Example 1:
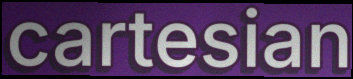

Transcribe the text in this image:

cartesian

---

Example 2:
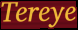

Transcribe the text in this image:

Tereye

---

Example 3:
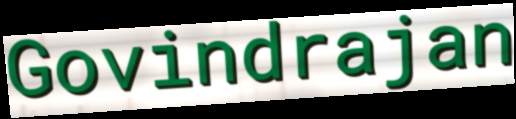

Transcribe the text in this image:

Govindrajan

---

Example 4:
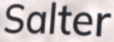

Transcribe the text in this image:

Salter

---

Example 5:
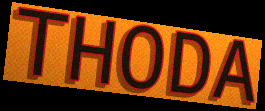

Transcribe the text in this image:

THODA